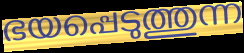
ഭയപ്പെടുത്തുന്ന